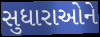
સુધારાઓને